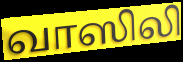
வாஸிலி